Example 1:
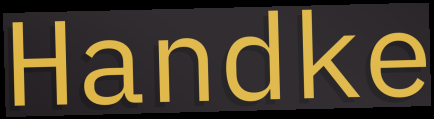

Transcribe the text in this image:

Handke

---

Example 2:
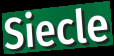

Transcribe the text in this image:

Siecle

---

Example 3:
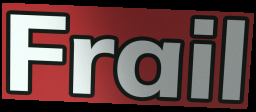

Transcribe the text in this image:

Frail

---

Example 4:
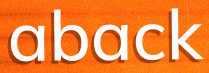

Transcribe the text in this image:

aback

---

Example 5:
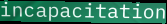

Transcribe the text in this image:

incapacitation